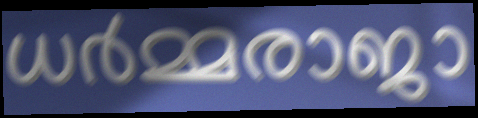
ധർമ്മരാജാ